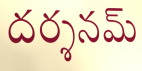
దర్శనమ్